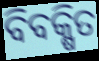
ବିବକ୍ଷିତ